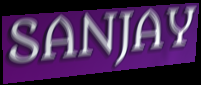
SANJAY